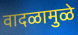
वादळामुळे